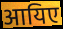
आयिए